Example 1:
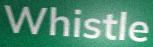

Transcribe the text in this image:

Whistle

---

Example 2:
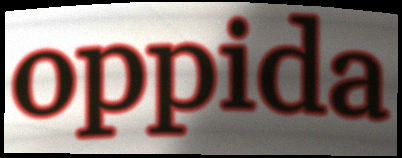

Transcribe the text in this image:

oppida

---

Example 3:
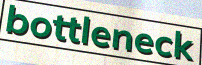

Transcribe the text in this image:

bottleneck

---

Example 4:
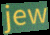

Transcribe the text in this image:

jew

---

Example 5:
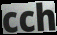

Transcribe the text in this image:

cch